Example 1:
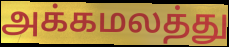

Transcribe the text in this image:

அக்கமலத்து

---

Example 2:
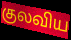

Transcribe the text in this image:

குலவிய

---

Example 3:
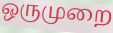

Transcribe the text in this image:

ஒருமுறை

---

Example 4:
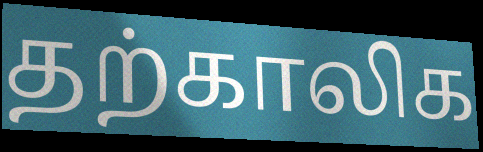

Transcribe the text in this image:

தற்காலிக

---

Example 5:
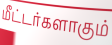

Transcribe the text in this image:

மீட்டர்களாகும்